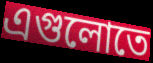
এগুলোতে